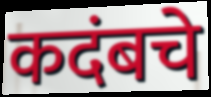
कदंबचे